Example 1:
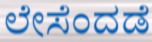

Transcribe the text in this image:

ಲೇಸೆಂದಡೆ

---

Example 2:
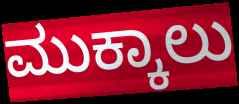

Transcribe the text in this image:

ಮುಕ್ಕಾಲು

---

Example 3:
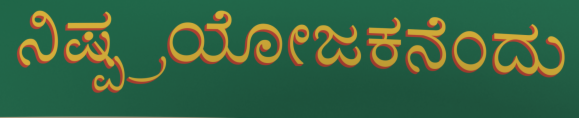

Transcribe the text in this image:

ನಿಷ್ಪ್ರಯೋಜಕನೆಂದು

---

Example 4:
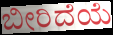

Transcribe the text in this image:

ಬೀರಿದೆಯೆ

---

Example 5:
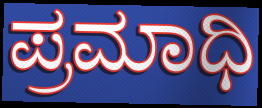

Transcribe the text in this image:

ಪ್ರಮಾಧಿ